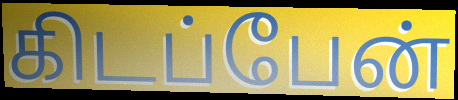
கிடப்பேன்